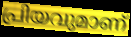
പ്രിയവുമാണ്